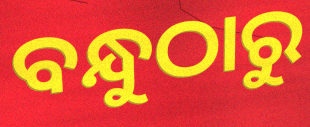
ବନ୍ଧୁଠାରୁ